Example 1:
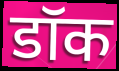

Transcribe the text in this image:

डॉक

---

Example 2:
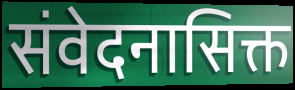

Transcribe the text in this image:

संवेदनासिक्त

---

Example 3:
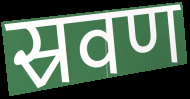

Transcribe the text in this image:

स्रवण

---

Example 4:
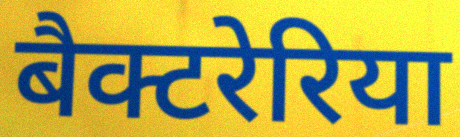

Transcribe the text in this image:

बैक्टरेरिया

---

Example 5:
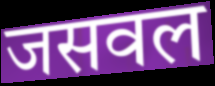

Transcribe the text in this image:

जसवल